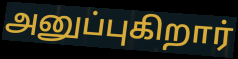
அனுப்புகிறார்